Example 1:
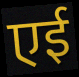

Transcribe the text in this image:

एई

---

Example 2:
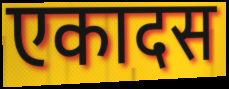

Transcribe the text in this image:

एकादस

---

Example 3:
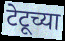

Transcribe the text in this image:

टेटूच्या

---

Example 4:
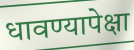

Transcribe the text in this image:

धावण्यापेक्षा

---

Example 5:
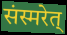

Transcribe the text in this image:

संस्मरेत्